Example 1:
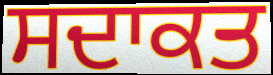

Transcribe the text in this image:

ਸਦਾਕਤ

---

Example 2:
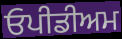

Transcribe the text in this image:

ਓਪੀਡੀਅਮ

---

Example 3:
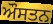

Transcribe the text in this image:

ਔਸਤਨ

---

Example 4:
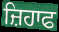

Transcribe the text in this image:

ਜ਼ਿਹਾਫ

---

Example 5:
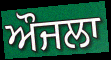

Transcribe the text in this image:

ਔਜਲਾ